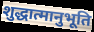
शुद्धात्मानुभूति